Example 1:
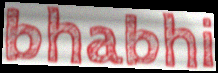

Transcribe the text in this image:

bhabhi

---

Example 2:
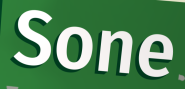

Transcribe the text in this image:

Sone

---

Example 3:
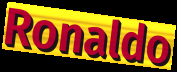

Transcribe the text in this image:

Ronaldo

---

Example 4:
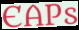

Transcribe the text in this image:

EAPs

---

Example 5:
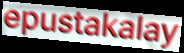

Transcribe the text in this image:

epustakalay